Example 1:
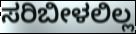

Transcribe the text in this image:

ಸರಿಬೀಳಲಿಲ್ಲ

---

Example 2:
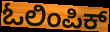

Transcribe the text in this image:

ಓಲಿಂಪಿಕ್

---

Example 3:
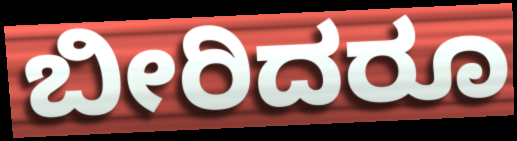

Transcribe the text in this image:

ಬೀರಿದರೂ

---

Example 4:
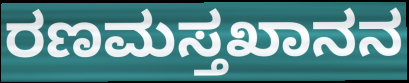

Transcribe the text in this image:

ರಣಮಸ್ತಖಾನನ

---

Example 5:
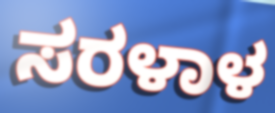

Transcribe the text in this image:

ಸರಳಾಳ